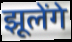
झूलेंगे